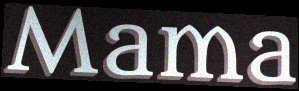
Mama